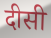
दीसी